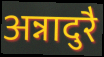
अन्नादुरै